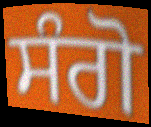
ਸੰਗੋ